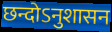
छन्दोऽनुशासन